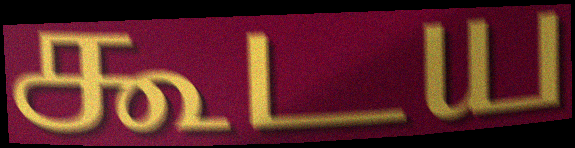
கூடய